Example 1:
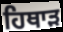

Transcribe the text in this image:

ਹਿਥਾੜ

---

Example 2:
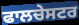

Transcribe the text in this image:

ਫਾਲਚੇਸਟਰ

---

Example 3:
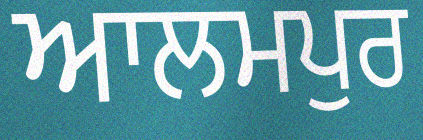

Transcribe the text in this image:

ਆਲਮਪੁਰ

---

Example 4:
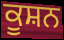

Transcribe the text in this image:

ਕੂਸ਼ਨ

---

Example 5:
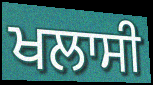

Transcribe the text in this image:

ਖਲਾਸੀ